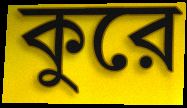
কুরে